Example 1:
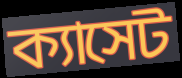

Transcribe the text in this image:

ক্যাসেট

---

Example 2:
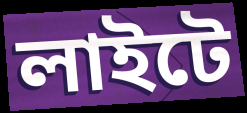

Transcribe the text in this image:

লাইটে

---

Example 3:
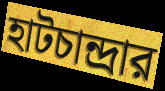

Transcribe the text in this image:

হাটচান্দ্রার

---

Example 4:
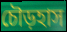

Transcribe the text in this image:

চৌড়হাস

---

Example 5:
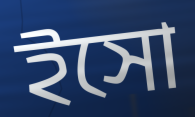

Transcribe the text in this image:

ইসো